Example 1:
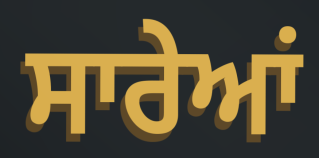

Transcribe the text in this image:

ਸਾਰੇਆਂ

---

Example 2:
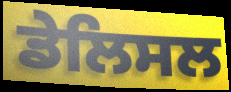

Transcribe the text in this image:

ਡੇਲਿਸਲ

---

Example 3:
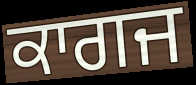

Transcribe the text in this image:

ਕਾਗਜ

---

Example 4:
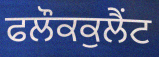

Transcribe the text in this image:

ਫਲੌਕਕੁਲੈਂਟ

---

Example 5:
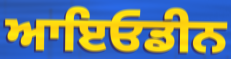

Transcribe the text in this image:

ਆਇਓਡੀਨ